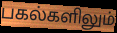
பகல்களிலும்